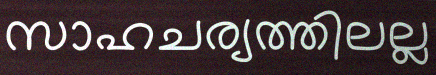
സാഹചര്യത്തിലല്ല